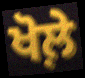
ਖੋਲ਼ੇ